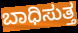
ಬಾಧಿಸುತ್ತ